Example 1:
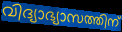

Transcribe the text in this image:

വിദ്യാഭ്യാസത്തിന്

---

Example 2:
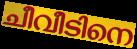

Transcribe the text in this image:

ചീവീടിനെ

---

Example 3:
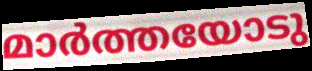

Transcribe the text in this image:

മാർത്തയോടു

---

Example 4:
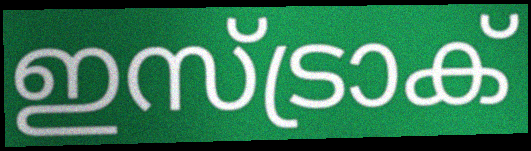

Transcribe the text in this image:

ഇസ്ട്രാക്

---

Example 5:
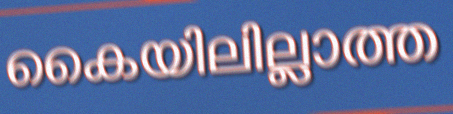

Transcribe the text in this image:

കൈയിലില്ലാത്ത